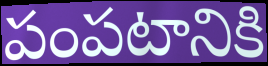
పంపటానికి